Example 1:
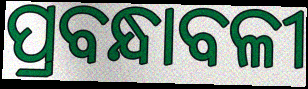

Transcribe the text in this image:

ପ୍ରବନ୍ଧାବଳୀ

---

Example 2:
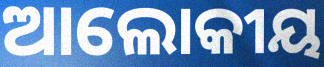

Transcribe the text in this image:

ଆଲୋକୀୟ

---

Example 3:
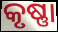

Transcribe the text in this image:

କୃଷ୍ଣା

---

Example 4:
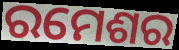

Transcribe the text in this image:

ରମେଶର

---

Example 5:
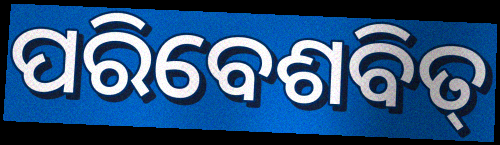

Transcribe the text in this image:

ପରିବେଶବିତ୍